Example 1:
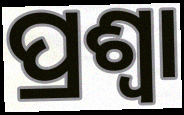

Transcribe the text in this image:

ପ୍ରଶ୍ଵା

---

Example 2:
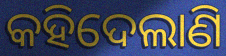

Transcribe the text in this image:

କହିଦେଲାଣି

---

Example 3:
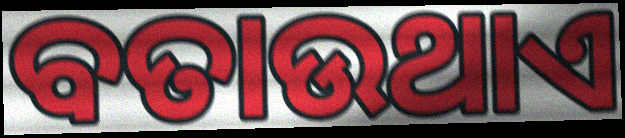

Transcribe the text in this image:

ବତାଉଥାଏ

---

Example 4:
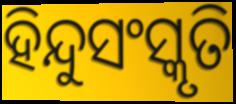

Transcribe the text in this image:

ହିନ୍ଦୁସଂସ୍କୃତି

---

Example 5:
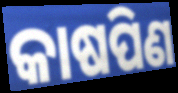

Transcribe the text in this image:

କାଷପିଣ